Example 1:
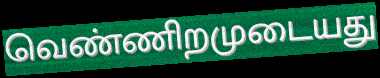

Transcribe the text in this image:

வெண்ணிறமுடையது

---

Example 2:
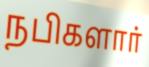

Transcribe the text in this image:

நபிகளார்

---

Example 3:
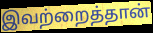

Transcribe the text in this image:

இவற்றைத்தான்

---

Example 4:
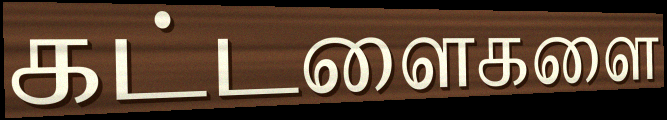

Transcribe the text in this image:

கட்டளைகளை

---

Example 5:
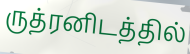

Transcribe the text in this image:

ருத்ரனிடத்தில்